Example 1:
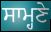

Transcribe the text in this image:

ਸਾਮ੍ਹਣੇ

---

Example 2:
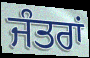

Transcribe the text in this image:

ਜੰਤਰਾਂ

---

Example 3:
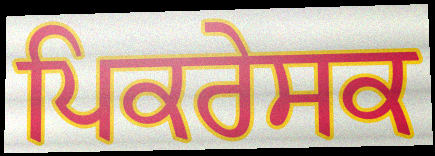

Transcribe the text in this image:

ਪਿਕਰੇਸਕ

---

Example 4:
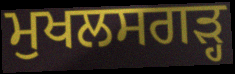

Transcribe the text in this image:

ਮੁਖਲਸਗੜ੍ਹ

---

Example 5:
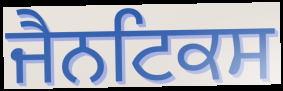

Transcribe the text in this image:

ਜੈਨਟਿਕਸ